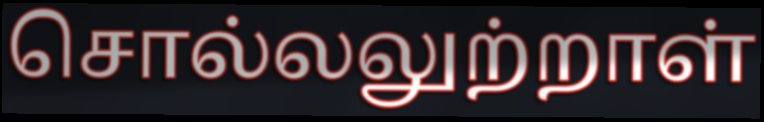
சொல்லலுற்றாள்